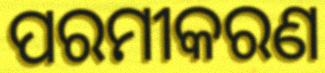
ପରମୀକରଣ